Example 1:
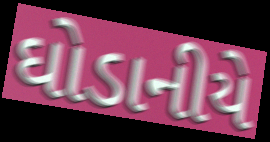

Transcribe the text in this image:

ઘોડાનીયે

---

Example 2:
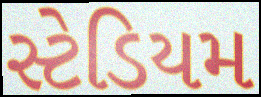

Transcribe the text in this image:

સ્ટેડિયમ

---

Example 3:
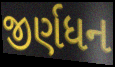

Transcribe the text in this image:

જીર્ણધન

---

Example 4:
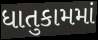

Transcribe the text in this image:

ધાતુકામમાં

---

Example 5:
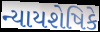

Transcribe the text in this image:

ન્યાયશેષિકે